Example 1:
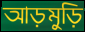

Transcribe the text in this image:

আড়মুড়ি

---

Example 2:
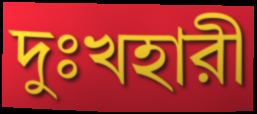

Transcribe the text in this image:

দুঃখহারী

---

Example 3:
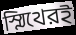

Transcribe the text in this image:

স্মিথেরই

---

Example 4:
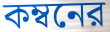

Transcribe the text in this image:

কম্বনের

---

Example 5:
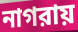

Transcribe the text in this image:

নাগরায়